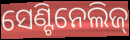
ସେଣ୍ଟିନେଲିଜ୍